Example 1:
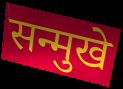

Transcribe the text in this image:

सन्मुखे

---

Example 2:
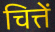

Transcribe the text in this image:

चित्तें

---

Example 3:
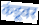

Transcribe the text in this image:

कंडूवर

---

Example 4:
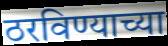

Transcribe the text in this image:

ठरविण्याच्या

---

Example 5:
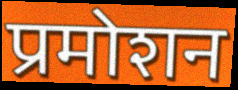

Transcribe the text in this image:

प्रमोशन